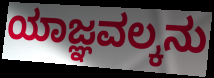
ಯಾಜ್ಞವಲ್ಕನು